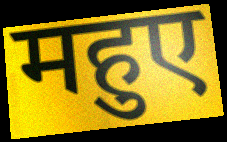
महुए